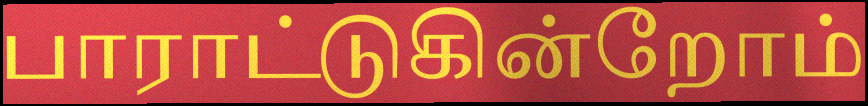
பாராட்டுகின்றோம்